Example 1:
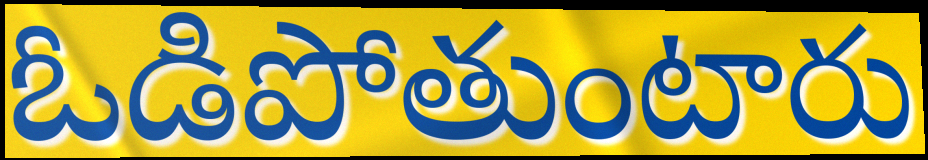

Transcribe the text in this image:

ఓడిపోతుంటారు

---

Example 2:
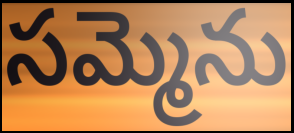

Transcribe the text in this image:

సమ్మెను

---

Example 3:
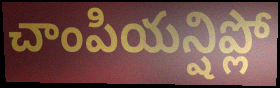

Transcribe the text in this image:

చాంపియన్షిప్లో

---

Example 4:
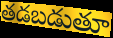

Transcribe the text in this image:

తడబడుతూ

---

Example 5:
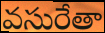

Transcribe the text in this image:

వసురేతా